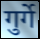
गुर्गे